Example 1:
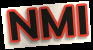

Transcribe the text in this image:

NMI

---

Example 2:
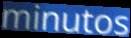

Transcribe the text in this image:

minutos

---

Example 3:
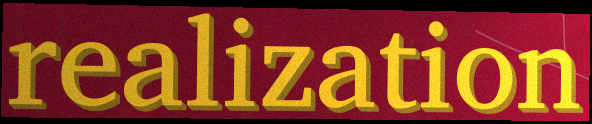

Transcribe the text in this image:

realization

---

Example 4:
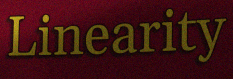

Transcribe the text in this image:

Linearity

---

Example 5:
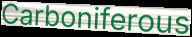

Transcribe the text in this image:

Carboniferous